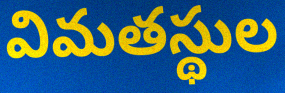
విమతస్థుల